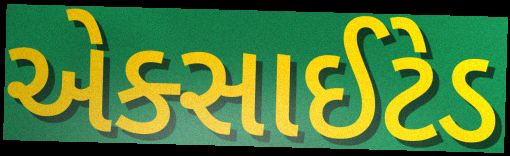
એક્સાઈટેડ